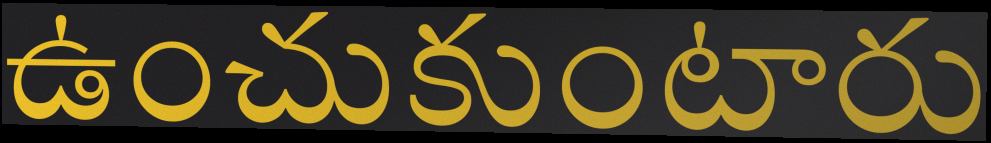
ఉంచుకుంటారు